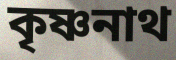
কৃষ্ণনাথ